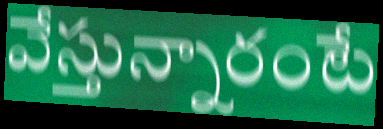
వేస్తున్నారంటే